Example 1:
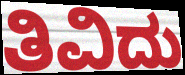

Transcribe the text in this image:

ತಿವಿದು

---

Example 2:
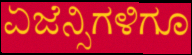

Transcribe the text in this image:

ಏಜೆನ್ಸಿಗಳಿಗೂ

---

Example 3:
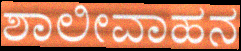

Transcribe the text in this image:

ಶಾಲೀವಾಹನ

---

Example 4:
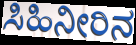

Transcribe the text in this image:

ಸಿಹಿನೀರಿನ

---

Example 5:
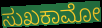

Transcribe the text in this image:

ಸುಖಕಾಮೋ